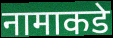
नामाकडे